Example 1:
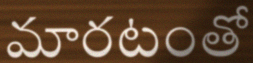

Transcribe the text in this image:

మారటంతో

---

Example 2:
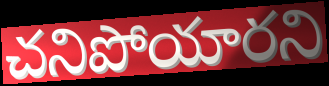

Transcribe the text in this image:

చనిపోయారని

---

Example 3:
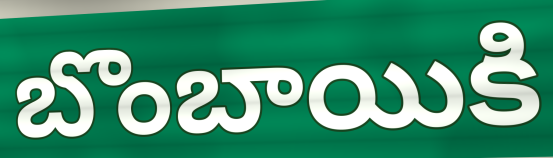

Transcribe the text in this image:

బొంబాయికి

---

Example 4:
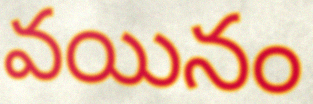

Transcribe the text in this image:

వయినం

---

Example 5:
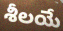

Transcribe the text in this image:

శీలయే